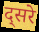
द्सरे